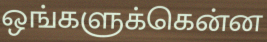
ஒங்களுக்கென்ன